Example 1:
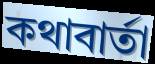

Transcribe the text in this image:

কথাবার্তা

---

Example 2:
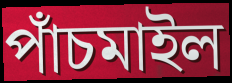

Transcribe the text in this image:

পাঁচমাইল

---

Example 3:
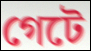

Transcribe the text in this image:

গেটে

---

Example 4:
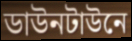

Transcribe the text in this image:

ডাউনটাউনে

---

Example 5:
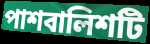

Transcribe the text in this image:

পাশবালিশটি